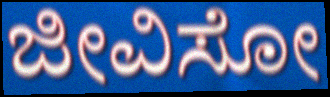
ಜೀವಿಸೋ